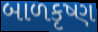
બાળકૃષ્ણ